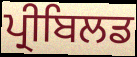
ਪ੍ਰੀਬਿਲਡ